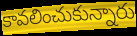
కావలించుకున్నారు